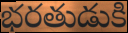
భరతుడుకి